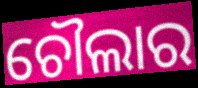
ଚୌଲାର